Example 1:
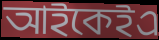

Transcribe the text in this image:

আইকেইএ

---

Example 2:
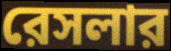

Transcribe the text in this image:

রেসলার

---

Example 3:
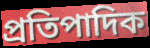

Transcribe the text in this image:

প্রতিপাদিক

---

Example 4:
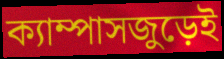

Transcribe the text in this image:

ক্যাম্পাসজুড়েই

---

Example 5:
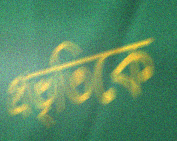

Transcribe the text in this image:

প্রভৃতিকে